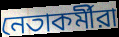
নেতাকর্মীরা